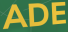
ADE